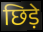
छिड़े